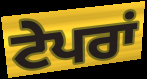
ਟੇਪਰਾਂ